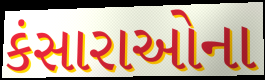
કંસારાઓના